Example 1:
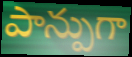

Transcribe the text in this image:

పాన్పుగా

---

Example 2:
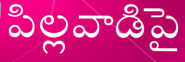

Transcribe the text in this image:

పిల్లవాడిపై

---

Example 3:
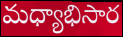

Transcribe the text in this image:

మధ్యాభిసార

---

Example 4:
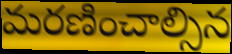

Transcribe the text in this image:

మరణించాల్సిన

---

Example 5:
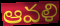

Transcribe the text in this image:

ఆవళి